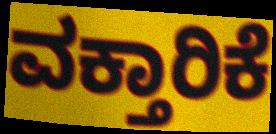
ವಕ್ತಾರಿಕೆ